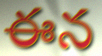
ఈన